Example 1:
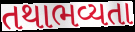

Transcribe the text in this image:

તથાભવ્યતા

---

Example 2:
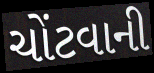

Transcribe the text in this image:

ચોંટવાની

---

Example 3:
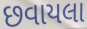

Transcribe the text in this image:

છવાયલા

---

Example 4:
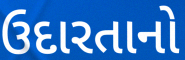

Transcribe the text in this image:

ઉદારતાનો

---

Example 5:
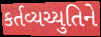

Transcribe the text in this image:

કર્તવ્યચ્યુતિને